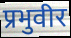
प्रभुवीर